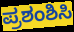
ಪ್ರಶಂಶಿಸಿ